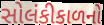
સોલંકીકાળનો